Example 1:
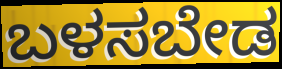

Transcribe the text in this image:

ಬಳಸಬೇಡ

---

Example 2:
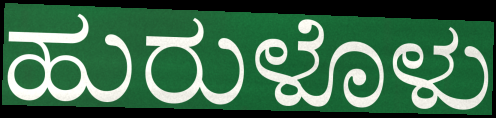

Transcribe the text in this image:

ಹುರುಳೊಳು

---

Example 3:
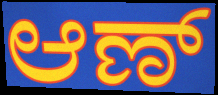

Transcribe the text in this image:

ಆಣ್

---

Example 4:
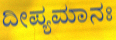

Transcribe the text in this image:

ದೀಪ್ಯಮಾನಃ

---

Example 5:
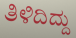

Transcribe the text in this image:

ತಿಳಿದಿದ್ದು